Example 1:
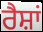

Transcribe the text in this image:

ਰੈਸ਼ਾਂ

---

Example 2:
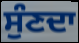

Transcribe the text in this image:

ਸੁੰਣਦਾ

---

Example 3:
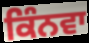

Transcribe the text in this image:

ਕਿੰਨਵਾ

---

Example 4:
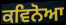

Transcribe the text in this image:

ਕਵਿਨੋਆ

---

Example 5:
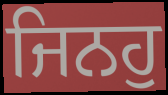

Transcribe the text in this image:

ਜਿਨਹੁ